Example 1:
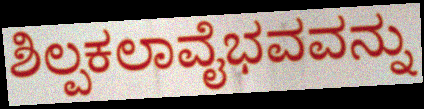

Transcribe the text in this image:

ಶಿಲ್ಪಕಲಾವೈಭವವನ್ನು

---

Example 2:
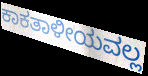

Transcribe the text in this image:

ಕಾಕತಾಳೀಯವಲ್ಲ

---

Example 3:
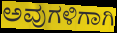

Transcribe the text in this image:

ಅವುಗಳಿಗಾಗಿ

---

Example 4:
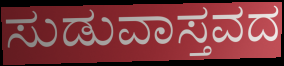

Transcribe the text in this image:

ಸುಡುವಾಸ್ತವದ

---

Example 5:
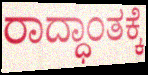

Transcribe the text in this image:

ರಾದ್ಧಾಂತಕ್ಕೆ